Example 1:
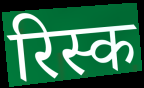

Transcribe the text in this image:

रिस्क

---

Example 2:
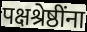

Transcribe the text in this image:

पक्षश्रेष्ठींना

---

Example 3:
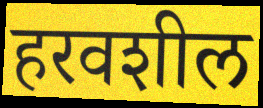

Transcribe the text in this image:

हरवशील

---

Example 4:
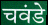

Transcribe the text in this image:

चवंडे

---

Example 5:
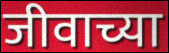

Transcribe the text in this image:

जीवाच्या